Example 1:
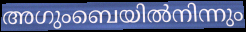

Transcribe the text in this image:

അഗുംബെയിൽനിന്നും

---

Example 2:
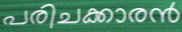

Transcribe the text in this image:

പരിചക്കാരൻ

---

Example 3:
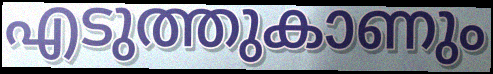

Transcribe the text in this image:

എടുത്തുകാണും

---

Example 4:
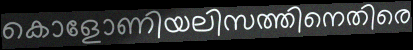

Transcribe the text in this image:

കൊളോണിയലിസത്തിനെതിരെ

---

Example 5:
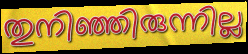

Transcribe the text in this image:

തുനിഞ്ഞിരുന്നില്ല